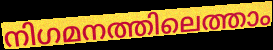
നിഗമനത്തിലെത്താം